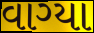
વાગ્યા